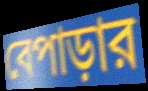
বেপাড়ার